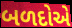
બળદોએ